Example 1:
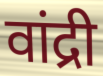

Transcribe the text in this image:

वांद्री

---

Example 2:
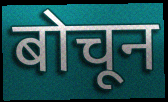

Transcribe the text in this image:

बोचून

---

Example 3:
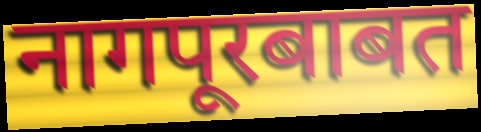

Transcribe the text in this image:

नागपूरबाबत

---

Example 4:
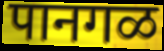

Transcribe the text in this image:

पानगळ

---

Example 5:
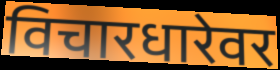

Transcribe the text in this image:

विचारधारेवर